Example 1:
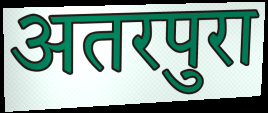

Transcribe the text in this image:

अतरपुरा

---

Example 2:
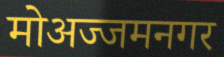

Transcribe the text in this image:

मोअज्जमनगर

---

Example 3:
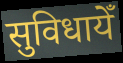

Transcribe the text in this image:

सुविधायेँ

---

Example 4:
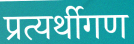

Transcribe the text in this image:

प्रत्यर्थीगण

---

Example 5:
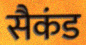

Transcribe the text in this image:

सैकंड